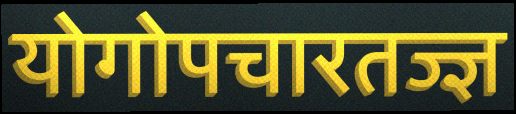
योगोपचारतज्ज्ञ